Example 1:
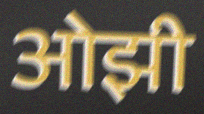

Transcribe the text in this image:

ओझी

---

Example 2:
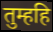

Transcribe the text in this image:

तुम्हहि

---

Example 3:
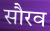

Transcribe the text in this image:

सौरव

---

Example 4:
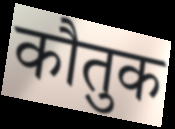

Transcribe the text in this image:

कौतुक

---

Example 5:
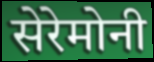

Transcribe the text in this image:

सेरेमोनी